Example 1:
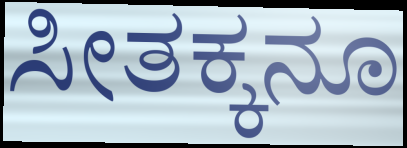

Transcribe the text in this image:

ಸೀತಕ್ಕನೂ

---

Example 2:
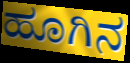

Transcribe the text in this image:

ಹೂಗಿನ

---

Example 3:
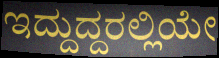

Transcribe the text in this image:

ಇದ್ದುದ್ದರಲ್ಲಿಯೇ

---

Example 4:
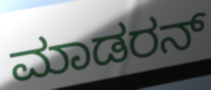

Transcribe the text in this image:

ಮಾಡರನ್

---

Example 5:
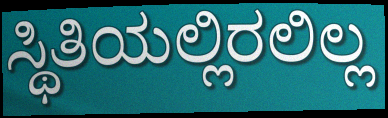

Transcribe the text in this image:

ಸ್ಥಿತಿಯಲ್ಲಿರಲಿಲ್ಲ